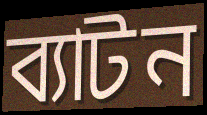
ব্যাটন